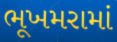
ભૂખમરામાં